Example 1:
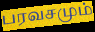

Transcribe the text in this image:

பரவசமும்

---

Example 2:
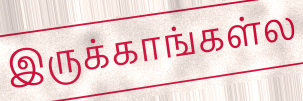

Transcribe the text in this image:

இருக்காங்கள்ல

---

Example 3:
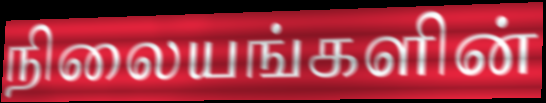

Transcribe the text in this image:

நிலையங்களின்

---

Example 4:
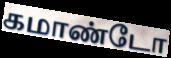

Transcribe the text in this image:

கமாண்டோ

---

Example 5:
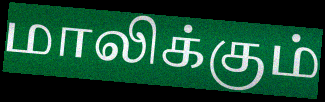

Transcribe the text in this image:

மாலிக்கும்